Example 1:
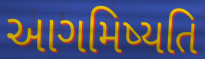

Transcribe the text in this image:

આગમિષ્યતિ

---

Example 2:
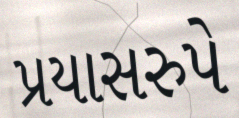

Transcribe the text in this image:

પ્રયાસરુપે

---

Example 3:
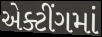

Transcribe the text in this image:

એક્ટીંગમાં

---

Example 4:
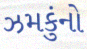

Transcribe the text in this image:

ઝમકુંનો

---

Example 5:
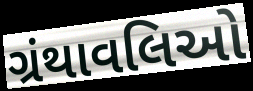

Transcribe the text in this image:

ગ્રંથાવલિઓ